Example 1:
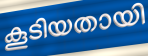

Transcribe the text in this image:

കൂടിയതായി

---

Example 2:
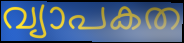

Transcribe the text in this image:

വ്യാപകത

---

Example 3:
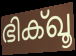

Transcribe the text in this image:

ഭിക്ഖൂ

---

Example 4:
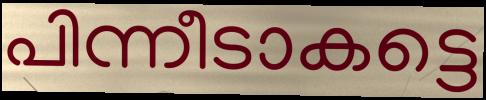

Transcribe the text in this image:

പിന്നീടാകട്ടെ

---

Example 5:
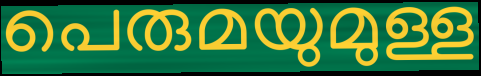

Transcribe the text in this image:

പെരുമയുമുള്ള